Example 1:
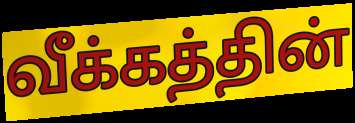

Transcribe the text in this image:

வீக்கத்தின்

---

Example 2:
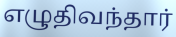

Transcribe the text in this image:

எழுதிவந்தார்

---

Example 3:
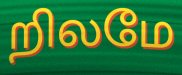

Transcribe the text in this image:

றிலமே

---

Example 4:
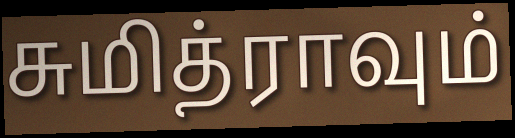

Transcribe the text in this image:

சுமித்ராவும்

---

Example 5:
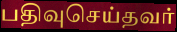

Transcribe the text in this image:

பதிவுசெய்தவர்